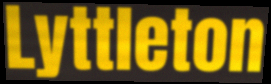
Lyttleton